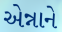
એન્નાને